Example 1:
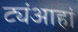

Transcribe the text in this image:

ट्यंआहां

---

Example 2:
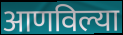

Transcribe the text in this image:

आणविल्या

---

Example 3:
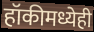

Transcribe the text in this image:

हॉकीमध्येही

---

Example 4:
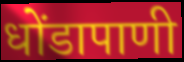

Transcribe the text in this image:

धोंडापाणी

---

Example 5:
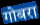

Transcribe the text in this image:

गोबरा